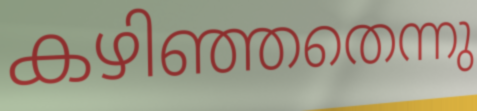
കഴിഞ്ഞതെന്നു